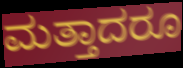
ಮತ್ತಾದರೂ